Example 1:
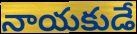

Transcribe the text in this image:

నాయకుడే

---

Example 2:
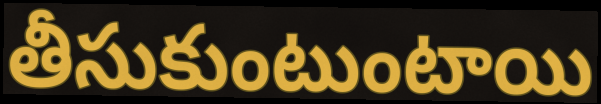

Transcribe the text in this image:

తీసుకుంటుంటాయి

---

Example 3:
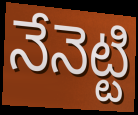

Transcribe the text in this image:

నేనెట్టి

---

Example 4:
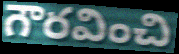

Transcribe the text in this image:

గౌరవించి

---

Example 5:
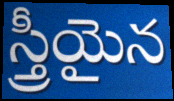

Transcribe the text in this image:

స్త్రీయైన